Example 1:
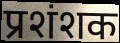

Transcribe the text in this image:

प्रशंशक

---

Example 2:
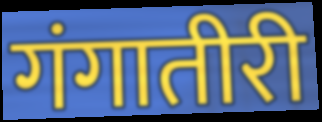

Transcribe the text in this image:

गंगातीरी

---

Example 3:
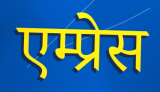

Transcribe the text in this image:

एम्प्रेस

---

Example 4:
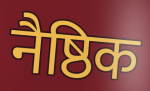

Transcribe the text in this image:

नैष्ठिक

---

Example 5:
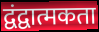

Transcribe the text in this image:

द्वंद्वात्मकता